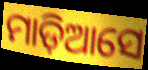
ମାଡ଼ିଆସେ